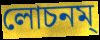
লোচনম্